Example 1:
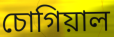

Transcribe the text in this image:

চোগিয়াল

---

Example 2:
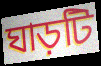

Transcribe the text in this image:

ঘাড়টি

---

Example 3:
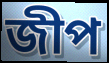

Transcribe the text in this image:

জীপ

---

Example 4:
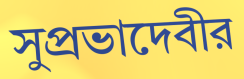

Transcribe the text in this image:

সুপ্রভাদেবীর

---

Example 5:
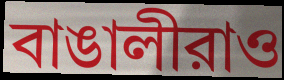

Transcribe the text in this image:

বাঙালীরাও